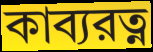
কাব্যরত্ন